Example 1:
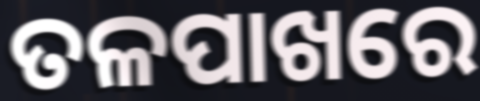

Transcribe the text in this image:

ତଳପାଖରେ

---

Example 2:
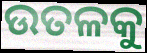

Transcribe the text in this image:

ଉତଳକୁ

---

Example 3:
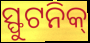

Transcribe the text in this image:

ସ୍ଫୁଟନିକ୍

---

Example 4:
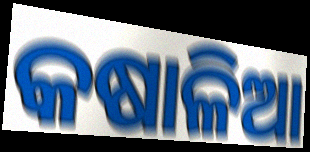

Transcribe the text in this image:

କଷାଳିଆ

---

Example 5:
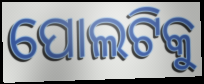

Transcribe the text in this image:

ପୋଲଟିକୁ